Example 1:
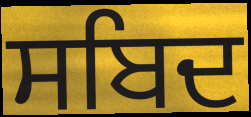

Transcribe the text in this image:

ਸਬਿਦ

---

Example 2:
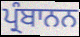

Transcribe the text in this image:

ਪ੍ਰੰਬਾਨਨ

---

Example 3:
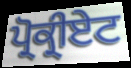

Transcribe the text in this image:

ਪ੍ਰੋਕ੍ਰੀਏਟ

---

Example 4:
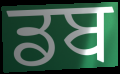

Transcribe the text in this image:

ਡਬ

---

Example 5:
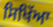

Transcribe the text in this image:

ਸਿਖਿੱਆ